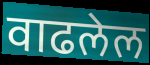
वाढलेल